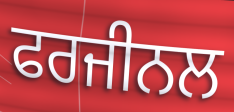
ਫਰਜੀਨਲ